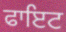
ਫਾਇਟ